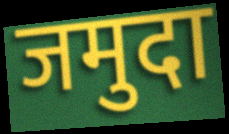
जमुदा